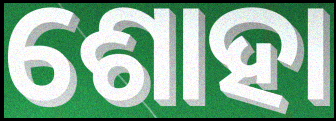
ଶୋହା